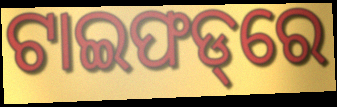
ଟାଇଫଡ୍‌ରେ